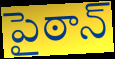
పైఠాన్